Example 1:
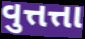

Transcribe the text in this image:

વુત્તત્તા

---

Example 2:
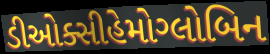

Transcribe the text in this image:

ડીઓક્સીહેમોગ્લોબિન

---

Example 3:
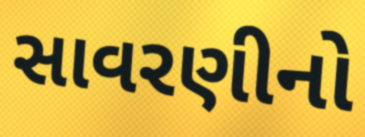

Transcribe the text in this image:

સાવરણીનો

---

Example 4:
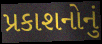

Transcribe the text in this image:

પ્રકાશનોનું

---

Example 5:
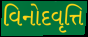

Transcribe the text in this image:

વિનોદવૃત્તિ